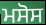
ਮਸੋਸ